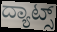
ದ್ಯಾಟ್ಸ್